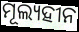
ମୂଲ୍ୟହୀନ